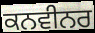
ਕਨਵੀਨਰ